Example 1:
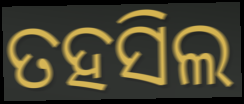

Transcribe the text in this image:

ତହସିଲ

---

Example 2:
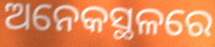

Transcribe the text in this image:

ଅନେକସ୍ଥଳରେ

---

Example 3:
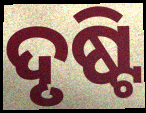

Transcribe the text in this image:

ଦୃଷ୍ଟି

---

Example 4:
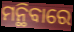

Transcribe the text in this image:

ମନ୍ଥିବାରେ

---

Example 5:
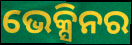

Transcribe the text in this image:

ଭେକ୍ସିନର